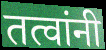
तत्वांनी